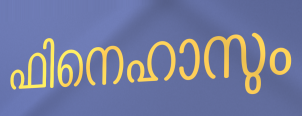
ഫിനെഹാസും